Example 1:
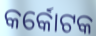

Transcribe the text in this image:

କର୍କୋଟକ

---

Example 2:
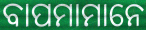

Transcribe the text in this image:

ବାପମାମାନେ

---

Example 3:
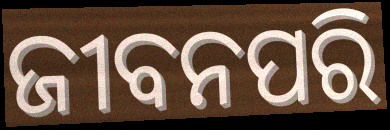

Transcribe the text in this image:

ଜୀବନପରି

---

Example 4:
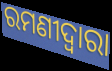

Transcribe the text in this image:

ରମଣୀଦ୍ୱାରା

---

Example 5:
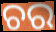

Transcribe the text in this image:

ଚର